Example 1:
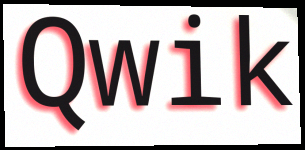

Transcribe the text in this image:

Qwik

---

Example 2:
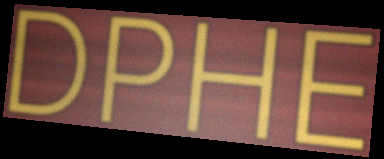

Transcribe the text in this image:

DPHE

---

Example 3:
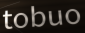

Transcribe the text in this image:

tobuo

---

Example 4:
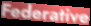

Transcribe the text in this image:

Federative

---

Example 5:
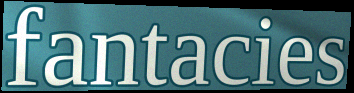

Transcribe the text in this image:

fantacies